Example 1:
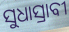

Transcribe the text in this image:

ସୁଧାସ୍ରାବୀ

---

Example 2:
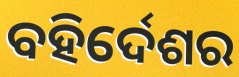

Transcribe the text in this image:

ବହିର୍ଦେଶର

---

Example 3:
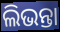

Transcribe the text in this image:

ଲିଭନ୍ତା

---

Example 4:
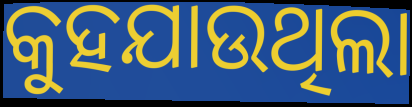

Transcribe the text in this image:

କୁହଯାଉଥିଲା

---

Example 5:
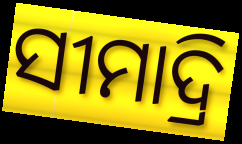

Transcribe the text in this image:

ସୀମାଦ୍ରି